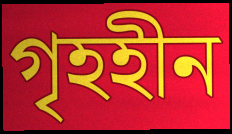
গৃহহীন